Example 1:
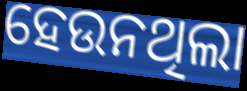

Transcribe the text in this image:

ହେଉନଥିଲା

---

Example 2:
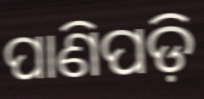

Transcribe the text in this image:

ପାଣିପଡ଼ି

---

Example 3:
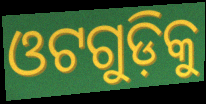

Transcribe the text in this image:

ଓଟଗୁଡ଼ିକୁ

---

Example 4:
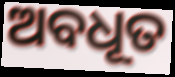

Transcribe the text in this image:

ଅବଧୂତ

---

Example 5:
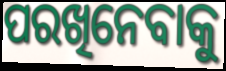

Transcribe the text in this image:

ପରଖିନେବାକୁ